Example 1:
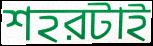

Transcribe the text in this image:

শহরটাই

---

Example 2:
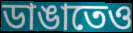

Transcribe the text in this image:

ডাঙাতেও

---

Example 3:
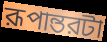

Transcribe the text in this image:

রূপান্তরটা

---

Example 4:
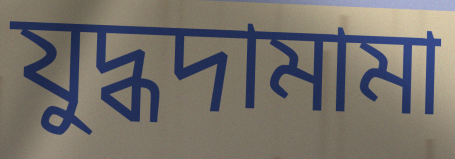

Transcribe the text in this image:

যুদ্ধদামামা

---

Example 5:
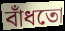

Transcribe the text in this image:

বাঁধতো